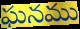
ఘనము